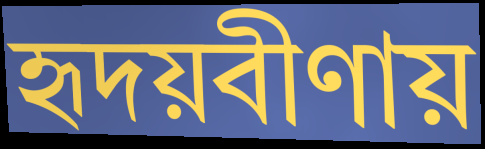
হৃদয়বীণায়